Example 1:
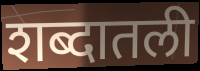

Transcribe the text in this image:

शब्दातली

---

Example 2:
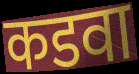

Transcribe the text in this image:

कडवा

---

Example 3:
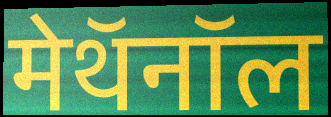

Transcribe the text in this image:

मेथॅनॉल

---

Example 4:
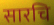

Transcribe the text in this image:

सारचि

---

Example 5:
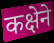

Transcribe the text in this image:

कक्षेने